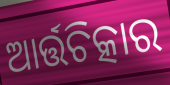
ଆର୍ତ୍ତଚିତ୍କାର